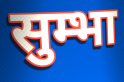
सुम्भा